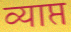
व्याप्त